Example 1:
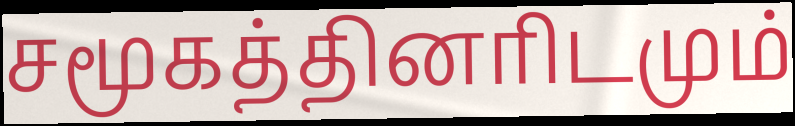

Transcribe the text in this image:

சமூகத்தினரிடமும்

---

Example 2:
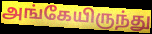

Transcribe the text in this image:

அங்கேயிருந்து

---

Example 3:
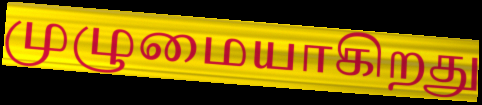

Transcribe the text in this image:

முழுமையாகிறது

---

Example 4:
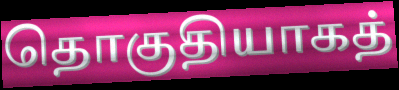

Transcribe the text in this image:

தொகுதியாகத்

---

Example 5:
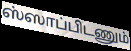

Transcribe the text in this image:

ஸ்ஸாப்பிடணும்